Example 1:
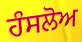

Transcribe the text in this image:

ਹੰਸਲੋਅ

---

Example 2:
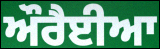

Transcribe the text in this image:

ਔਰੈਈਆ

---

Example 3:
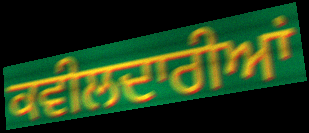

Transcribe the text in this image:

ਕਵੀਲਦਾਰੀਆਂ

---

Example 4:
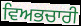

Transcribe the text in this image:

ਵਿਅਭਚਾਰੀ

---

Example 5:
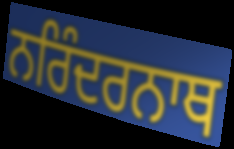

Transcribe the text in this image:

ਨਰਿੰਦਰਨਾਥ